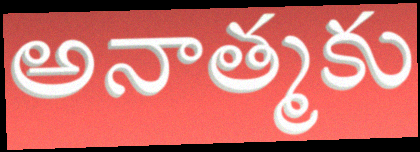
అనాత్మకు